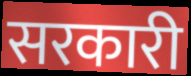
सरकारी